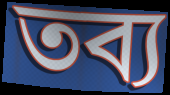
তব্য